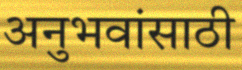
अनुभवांसाठी